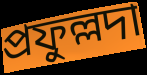
প্রফুল্লদা